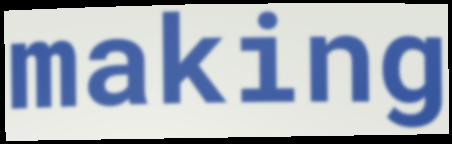
making